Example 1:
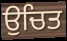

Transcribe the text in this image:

ਉਚਿਤ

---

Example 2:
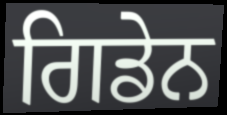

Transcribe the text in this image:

ਗਿਡੇਨ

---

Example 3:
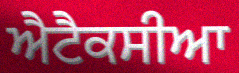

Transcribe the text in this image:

ਐਟੈਕਸੀਆ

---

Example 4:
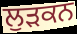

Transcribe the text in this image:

ਲੁੜਕਨ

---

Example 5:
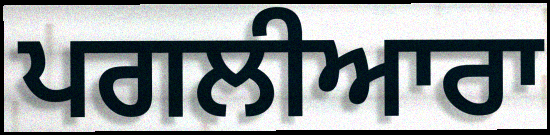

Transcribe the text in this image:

ਪਗਲੀਆਰਾ